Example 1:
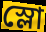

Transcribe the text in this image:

স্লো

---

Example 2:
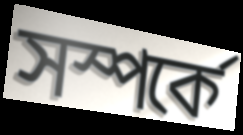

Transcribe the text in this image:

সস্পর্কে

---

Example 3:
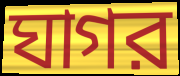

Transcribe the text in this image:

ঘাগর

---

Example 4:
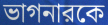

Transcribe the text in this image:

ভাগনারকে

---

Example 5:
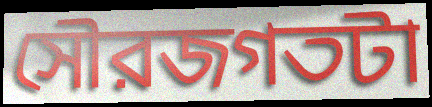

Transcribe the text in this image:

সৌরজগতটা